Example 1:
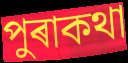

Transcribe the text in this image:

পুৰাকথা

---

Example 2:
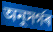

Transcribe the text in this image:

অনুসৰ্গৰ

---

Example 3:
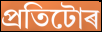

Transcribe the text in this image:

প্ৰতিটোৰ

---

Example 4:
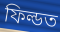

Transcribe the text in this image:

ফিল্ডত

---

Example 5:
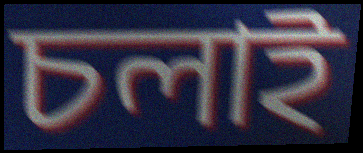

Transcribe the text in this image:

চলাই